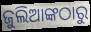
ଜୁଲିଆଙ୍କଠାରୁ